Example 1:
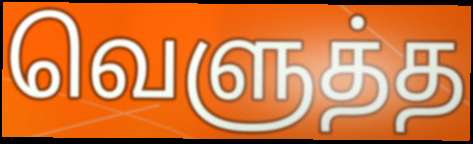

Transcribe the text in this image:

வெளுத்த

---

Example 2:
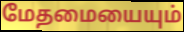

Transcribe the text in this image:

மேதமையையும்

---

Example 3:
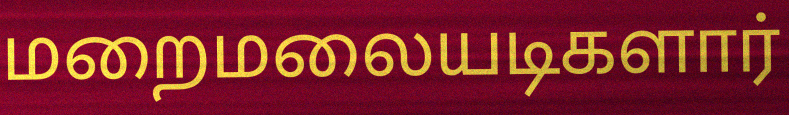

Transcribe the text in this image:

மறைமலையடிகளார்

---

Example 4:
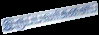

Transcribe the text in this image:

இருப்பவர்களைப்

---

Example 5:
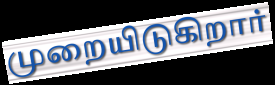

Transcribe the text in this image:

முறையிடுகிறார்